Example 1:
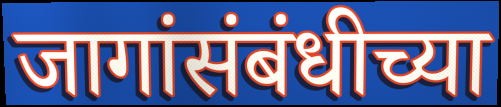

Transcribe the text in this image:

जागांसंबंधीच्या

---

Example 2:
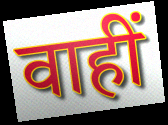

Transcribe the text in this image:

वाहीं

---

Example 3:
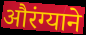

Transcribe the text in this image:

औरंग्याने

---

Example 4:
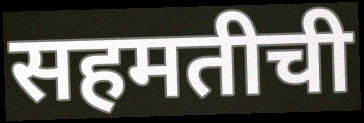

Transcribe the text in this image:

सहमतीची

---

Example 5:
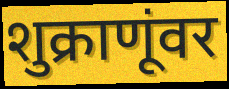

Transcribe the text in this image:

शुक्राणूंवर